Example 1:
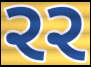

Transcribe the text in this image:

રર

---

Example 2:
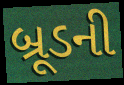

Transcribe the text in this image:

બ્રૂડની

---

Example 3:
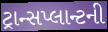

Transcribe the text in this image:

ટ્રાન્સપ્લાન્ટની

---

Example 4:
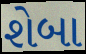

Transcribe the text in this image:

શેબા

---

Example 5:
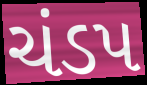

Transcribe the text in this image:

ચંડપ